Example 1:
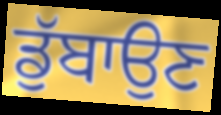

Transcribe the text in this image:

ਡੁੱਬਾਉਣ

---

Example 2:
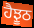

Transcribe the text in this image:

ਹੈਝੂਠ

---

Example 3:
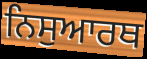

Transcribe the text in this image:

ਨਿਸੁਆਰਥ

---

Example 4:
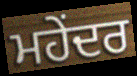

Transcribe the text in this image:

ਮਹੇਂਦਰ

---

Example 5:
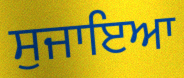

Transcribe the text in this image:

ਸੁਜਾਇਆ